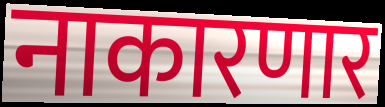
नाकारणार